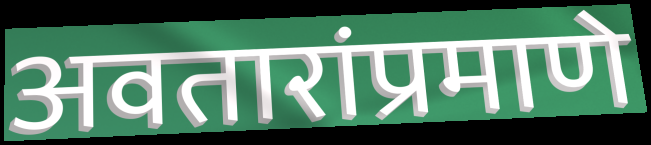
अवतारांप्रमाणे